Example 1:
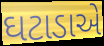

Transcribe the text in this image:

ઘટાડાએ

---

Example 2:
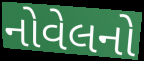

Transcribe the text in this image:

નોવેલનો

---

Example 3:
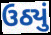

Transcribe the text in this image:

ઉઠ્યું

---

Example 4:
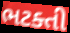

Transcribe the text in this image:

ભટક્તી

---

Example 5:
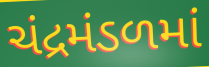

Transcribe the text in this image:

ચંદ્રમંડળમાં